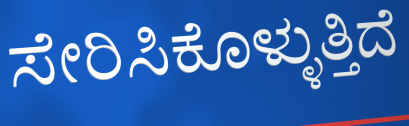
ಸೇರಿಸಿಕೊಳ್ಳುತ್ತಿದೆ